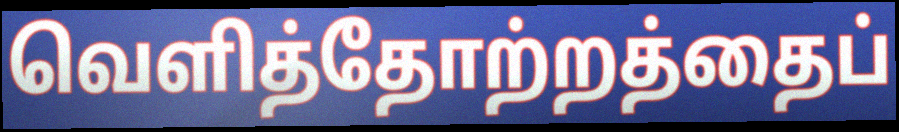
வெளித்தோற்றத்தைப்